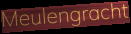
Meulengracht